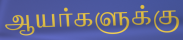
ஆயர்களுக்கு